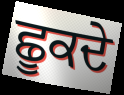
ਛੂਕਦੇ